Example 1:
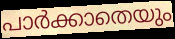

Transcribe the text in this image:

പാർക്കാതെയും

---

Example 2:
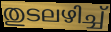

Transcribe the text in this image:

തുടലഴിച്ച്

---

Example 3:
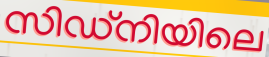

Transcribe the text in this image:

സിഡ്നിയിലെ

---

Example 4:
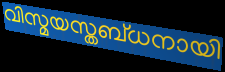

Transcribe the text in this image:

വിസ്മയസ്തബ്ധനായി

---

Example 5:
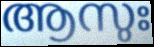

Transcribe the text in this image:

ആസുഃ